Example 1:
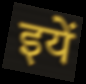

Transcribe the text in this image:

इयें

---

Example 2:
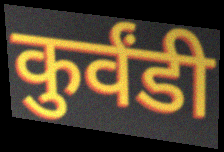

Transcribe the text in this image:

कुर्वंडी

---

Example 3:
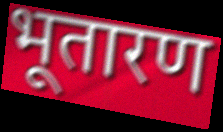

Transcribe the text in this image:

भूतारण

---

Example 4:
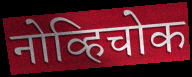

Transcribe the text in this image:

नोव्हिचोक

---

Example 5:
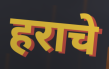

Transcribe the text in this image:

हराचे